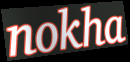
nokha